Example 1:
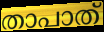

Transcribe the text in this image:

താപാത്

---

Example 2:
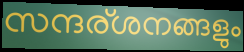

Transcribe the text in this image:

സന്ദര്ശനങ്ങളും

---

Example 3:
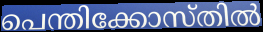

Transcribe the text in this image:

പെന്തിക്കോസ്തിൽ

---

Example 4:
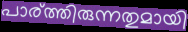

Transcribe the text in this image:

പാര്ത്തിരുന്നതുമായി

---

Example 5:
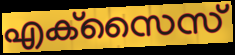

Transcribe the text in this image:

എക്‌സൈസ്